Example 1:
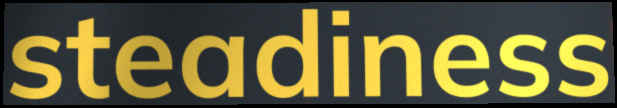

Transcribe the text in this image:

steadiness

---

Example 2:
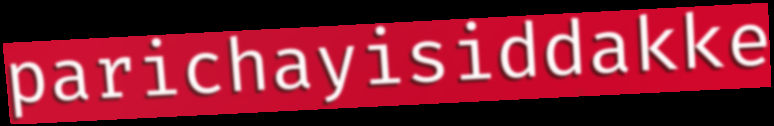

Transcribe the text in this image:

parichayisiddakke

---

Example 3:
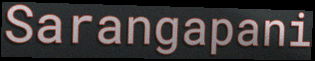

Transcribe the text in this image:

Sarangapani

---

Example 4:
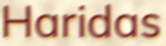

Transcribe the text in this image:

Haridas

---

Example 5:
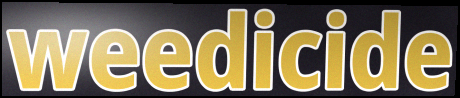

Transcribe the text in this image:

weedicide